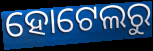
ହୋଟେଲରୁ